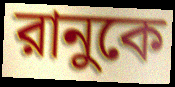
রানুকে